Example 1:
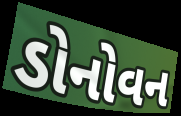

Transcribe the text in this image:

ડોનોવન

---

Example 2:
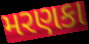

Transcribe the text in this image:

મરણકા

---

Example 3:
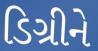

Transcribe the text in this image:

ડિગ્રીને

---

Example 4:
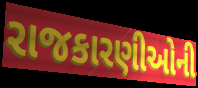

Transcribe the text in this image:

રાજકારણીઓની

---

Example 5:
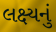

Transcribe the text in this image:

લક્ષ્યનું